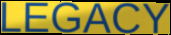
LEGACY